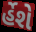
ર્હેશે